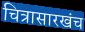
चित्रासारखंच